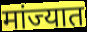
मांज्यात